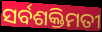
ସର୍ବଶକ୍ତିମତୀ